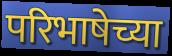
परिभाषेच्या